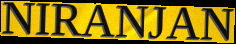
NIRANJAN